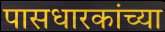
पासधारकांच्या